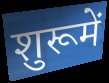
शुरूमें